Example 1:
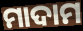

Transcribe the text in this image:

ମାଦାମ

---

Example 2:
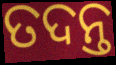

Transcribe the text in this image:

ତଦନ୍ତ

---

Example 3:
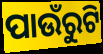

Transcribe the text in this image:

ପାଉଁରୁଟି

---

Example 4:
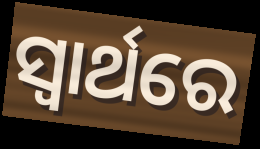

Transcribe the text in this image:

ସ୍ଵାର୍ଥରେ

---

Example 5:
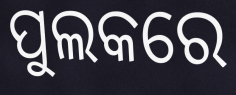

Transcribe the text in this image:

ପୁଲକରେ